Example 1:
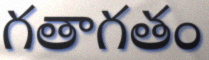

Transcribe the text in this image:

గతాగతం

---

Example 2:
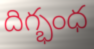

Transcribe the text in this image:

దిగ్భంధ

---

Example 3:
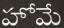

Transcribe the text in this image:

హోమే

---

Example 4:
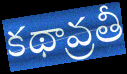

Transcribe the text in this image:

కథావ్రతీ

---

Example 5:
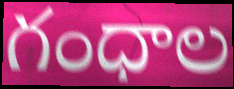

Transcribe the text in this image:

గంధాల